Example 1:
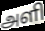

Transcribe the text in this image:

அளி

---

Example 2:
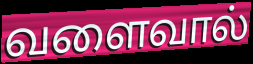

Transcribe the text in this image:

வளைவால்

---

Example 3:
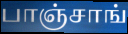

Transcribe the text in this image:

பாஞ்சாங்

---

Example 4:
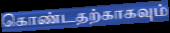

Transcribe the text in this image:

கொண்டதற்காகவும்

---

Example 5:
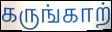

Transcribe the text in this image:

கருங்காற்